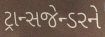
ટ્રાન્સજેન્ડરને